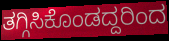
ತಗ್ಗಿಸಿಕೊಂಡದ್ದರಿಂದ